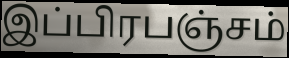
இப்பிரபஞ்சம்